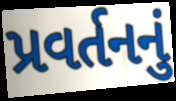
પ્રવર્તનનું